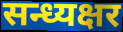
सन्ध्यक्षर